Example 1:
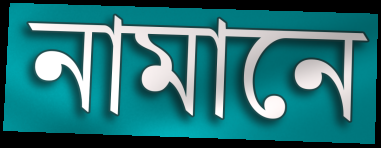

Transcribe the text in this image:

নামানে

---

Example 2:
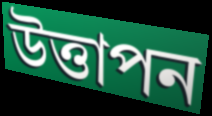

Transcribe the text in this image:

উত্তাপন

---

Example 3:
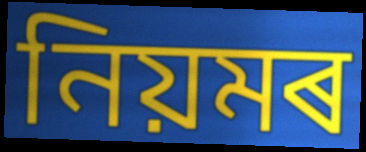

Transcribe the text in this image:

নিয়মৰ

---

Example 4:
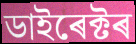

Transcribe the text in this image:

ডাইৰেক্টৰ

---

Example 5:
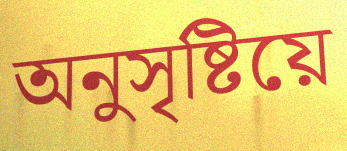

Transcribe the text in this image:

অনুসৃষ্টিয়ে